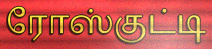
ரோஸ்குட்டி